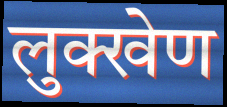
लुक्खेण